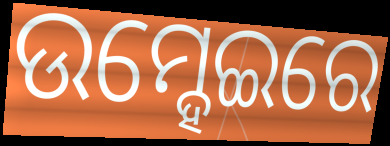
ଉମ୍ହେଇରେ